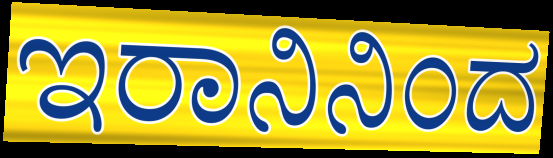
ಇರಾನಿನಿಂದ